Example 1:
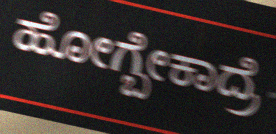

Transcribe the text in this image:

ಹೋಗ್ಬೇಕಾದ್ರೆ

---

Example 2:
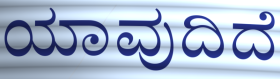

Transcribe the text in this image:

ಯಾವುದಿದೆ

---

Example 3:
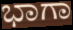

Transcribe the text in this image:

ಭಾಗಾ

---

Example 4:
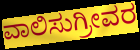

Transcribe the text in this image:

ವಾಲಿಸುಗ್ರೀವರ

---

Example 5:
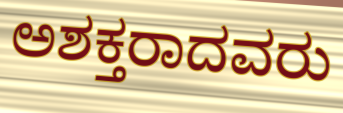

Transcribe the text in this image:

ಅಶಕ್ತರಾದವರು